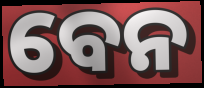
ବେନ